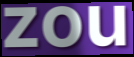
zou